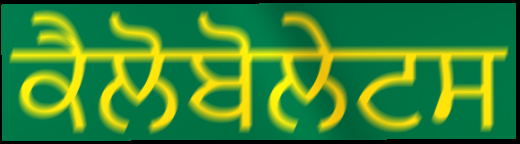
ਕੈਲੋਬੋਲੇਟਸ